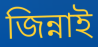
জিন্নাই